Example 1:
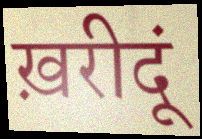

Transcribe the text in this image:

ख़रीदूं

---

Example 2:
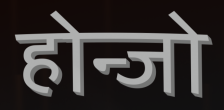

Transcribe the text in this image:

होन्जो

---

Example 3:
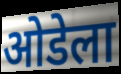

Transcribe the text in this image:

ओडेला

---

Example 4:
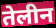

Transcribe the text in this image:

तेलीन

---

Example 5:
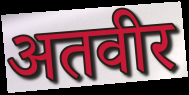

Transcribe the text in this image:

अतवीर